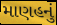
માણહનું